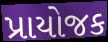
પ્રાયોજક